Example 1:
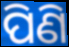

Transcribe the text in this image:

ପିଣି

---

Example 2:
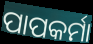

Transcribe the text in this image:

ପାପକର୍ମା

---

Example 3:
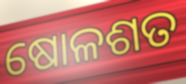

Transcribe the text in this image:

ଷୋଳଶତ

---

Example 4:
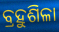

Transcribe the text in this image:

ବ୍ରହୁଶିଳା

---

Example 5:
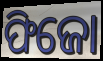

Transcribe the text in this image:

ଫିଜୋ